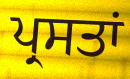
ਪ੍ਰਸਤਾਂ